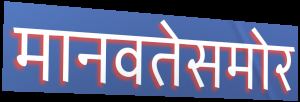
मानवतेसमोर